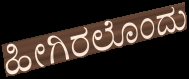
ಹೀಗಿರಲೊಂದು